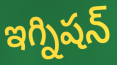
ఇగ్నిషన్